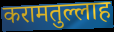
करामतुल्लाह